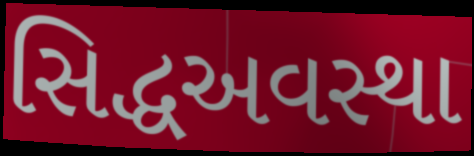
સિદ્ધઅવસ્થા